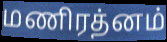
மணிரத்னம்